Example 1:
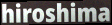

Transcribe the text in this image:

hiroshima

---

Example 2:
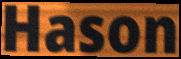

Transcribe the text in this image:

Hason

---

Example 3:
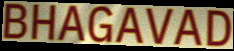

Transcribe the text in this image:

BHAGAVAD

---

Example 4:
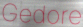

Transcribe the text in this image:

Gedore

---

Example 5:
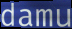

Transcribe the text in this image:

damu